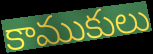
కాముకులు